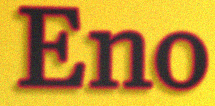
Eno